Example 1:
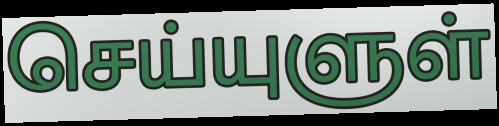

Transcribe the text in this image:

செய்யுளுள்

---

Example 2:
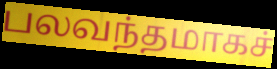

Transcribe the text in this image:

பலவந்தமாகச்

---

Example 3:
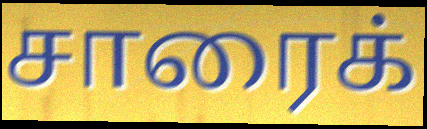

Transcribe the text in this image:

சாரைக்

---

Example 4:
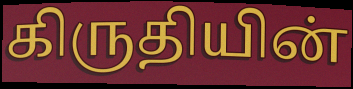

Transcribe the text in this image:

கிருதியின்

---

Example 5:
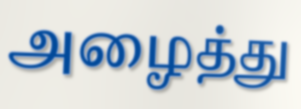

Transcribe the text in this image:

அழைத்து